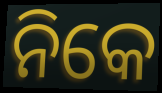
ନିକେ